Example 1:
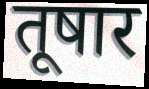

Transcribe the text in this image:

तूषार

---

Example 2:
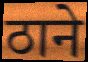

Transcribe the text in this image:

ठाने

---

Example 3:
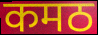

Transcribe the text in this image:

कमठ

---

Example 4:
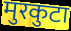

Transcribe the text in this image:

मुरकुटा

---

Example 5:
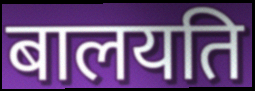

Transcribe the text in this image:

बालयति